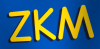
ZKM